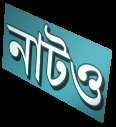
নাটও